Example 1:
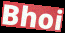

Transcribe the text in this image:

Bhoi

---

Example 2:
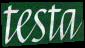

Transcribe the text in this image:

testa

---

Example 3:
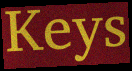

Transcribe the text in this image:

Keys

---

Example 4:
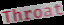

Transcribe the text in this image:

Throat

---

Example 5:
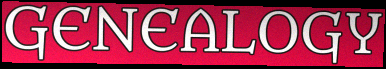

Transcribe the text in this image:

GENEALOGY